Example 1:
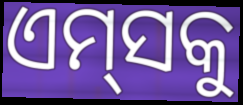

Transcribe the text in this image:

ଏମ୍‌ସକୁ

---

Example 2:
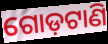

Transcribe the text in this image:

ଗୋଡ଼ଟାଣି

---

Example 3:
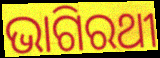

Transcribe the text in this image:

ଭାଗିରଥୀ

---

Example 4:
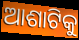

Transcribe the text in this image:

ଆଶାଟିକୁ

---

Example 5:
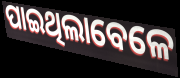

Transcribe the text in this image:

ପାଇଥିଲାବେଳେ